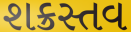
શક્રસ્તવ